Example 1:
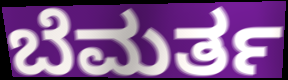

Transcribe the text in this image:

ಬೆಮರ್ತ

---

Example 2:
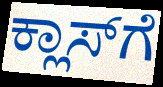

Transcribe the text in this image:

ಕ್ಲಾಸ್‍ಗೆ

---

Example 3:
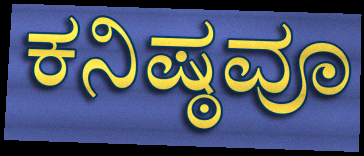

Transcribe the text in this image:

ಕನಿಷ್ಠವೂ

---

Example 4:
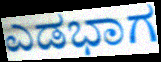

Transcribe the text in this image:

ಎಡಭಾಗ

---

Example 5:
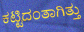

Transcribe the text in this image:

ಕಟ್ಟಿದಂತಾಗಿತ್ತು